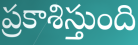
ప్రకాశిస్తుంది